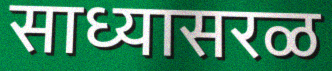
साध्यासरळ